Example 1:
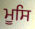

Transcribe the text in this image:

ਮੂਸਿ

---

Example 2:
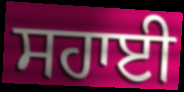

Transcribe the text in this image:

ਸਹਾਈ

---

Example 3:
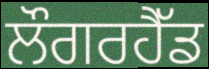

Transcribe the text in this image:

ਲੌਗਰਹੈੱਡ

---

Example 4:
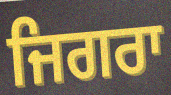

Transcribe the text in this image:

ਜਿਗਰਾ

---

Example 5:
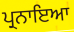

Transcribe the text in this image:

ਪ੍ਰਨਾਇਆ